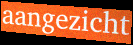
aangezicht